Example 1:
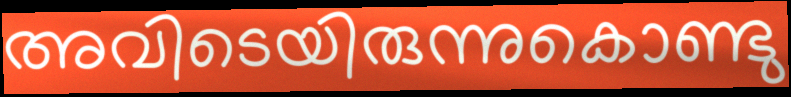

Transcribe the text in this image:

അവിടെയിരുന്നുകൊണ്ടു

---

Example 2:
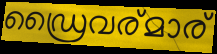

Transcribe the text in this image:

ഡ്രൈവര്മാര്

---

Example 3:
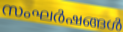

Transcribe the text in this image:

സംഘർഷങ്ങൾ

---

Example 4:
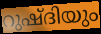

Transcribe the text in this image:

റുഷ്ദിയും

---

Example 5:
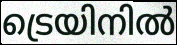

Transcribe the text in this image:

ട്രെയിനിൽ